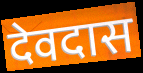
देवदास